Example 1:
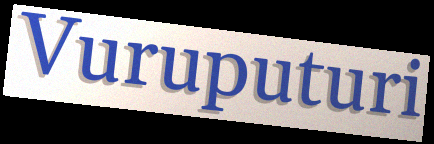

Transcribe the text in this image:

Vuruputuri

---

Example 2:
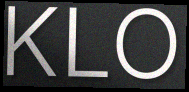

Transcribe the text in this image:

KLO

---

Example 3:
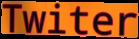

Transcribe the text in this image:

Twiter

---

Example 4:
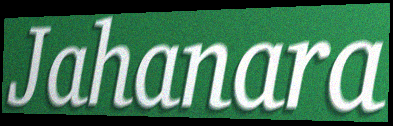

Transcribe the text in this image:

Jahanara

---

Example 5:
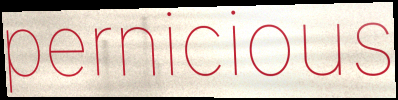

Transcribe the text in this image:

pernicious